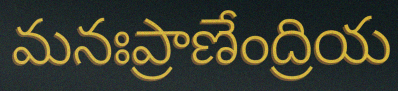
మనఃప్రాణేంద్రియ